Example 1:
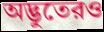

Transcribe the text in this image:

অদ্ভুতেরও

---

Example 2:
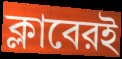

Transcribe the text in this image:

ক্লাবেরই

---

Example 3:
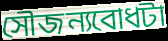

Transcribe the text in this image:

সৌজন্যবোধটা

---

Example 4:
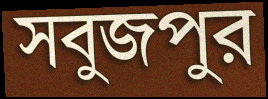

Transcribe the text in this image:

সবুজপুর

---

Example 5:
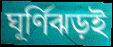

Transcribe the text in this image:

ঘূর্ণিঝড়ই